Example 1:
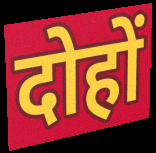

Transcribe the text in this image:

दोहों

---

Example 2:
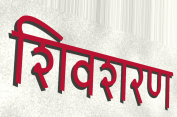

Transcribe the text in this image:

शिवशरण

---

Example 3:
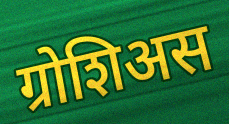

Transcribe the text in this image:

ग्रोशिअस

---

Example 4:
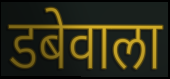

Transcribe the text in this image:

डबेवाला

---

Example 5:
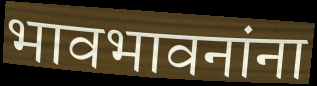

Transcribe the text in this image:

भावभावनांना